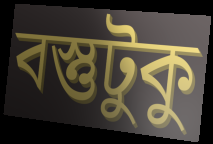
বস্তুটুকু